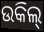
ଉକିଲ୍